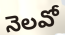
నెలవో